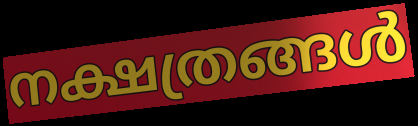
നക്ഷത്രങ്ങൾ